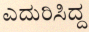
ಎದುರಿಸಿದ್ದ